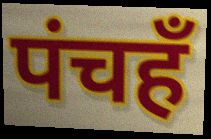
पंचहँ